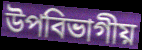
উপবিভাগীয়